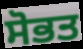
ਸੋਭਤ